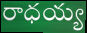
రాధయ్య